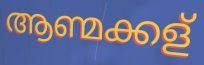
ആണ്മക്കള്